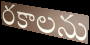
రకాలను